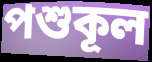
পশুকূল